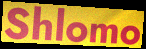
Shlomo